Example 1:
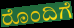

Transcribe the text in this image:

ರೊಂದಿಗೆ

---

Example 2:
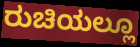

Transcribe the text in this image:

ರುಚಿಯಲ್ಲೂ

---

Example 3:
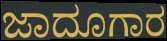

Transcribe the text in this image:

ಜಾದೂಗಾರ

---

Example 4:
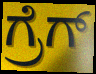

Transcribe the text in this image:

ಗ್ರೆಗ್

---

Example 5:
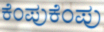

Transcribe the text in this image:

ಕೆಂಪುಕೆಂಪು